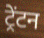
ट्रेंटन